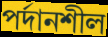
পর্দানশীল